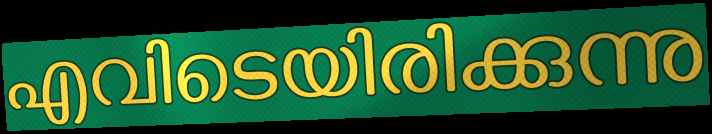
എവിടെയിരിക്കുന്നു